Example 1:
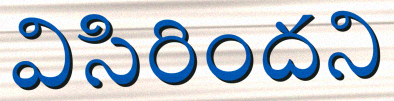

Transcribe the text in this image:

విసిరిందని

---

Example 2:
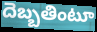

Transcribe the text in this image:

దెబ్బతింటూ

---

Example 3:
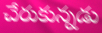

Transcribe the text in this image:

చేరుకున్నడు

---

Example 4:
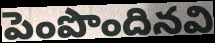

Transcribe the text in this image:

పెంపొందినవి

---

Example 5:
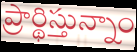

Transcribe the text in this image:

ప్రార్థిస్తున్నాం